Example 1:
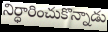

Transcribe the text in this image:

నిర్ధారించుకొన్నాడు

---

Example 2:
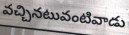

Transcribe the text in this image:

వచ్చినటువంటివాడు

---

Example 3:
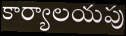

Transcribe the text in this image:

కార్యాలయపు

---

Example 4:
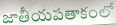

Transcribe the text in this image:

జాతీయపతాకంలో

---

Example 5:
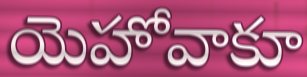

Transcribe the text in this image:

యెహోవాకూ